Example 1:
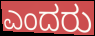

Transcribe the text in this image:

ಎಂದರು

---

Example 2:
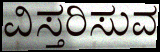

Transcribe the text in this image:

ವಿಸ್ತರಿಸುವ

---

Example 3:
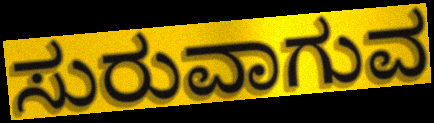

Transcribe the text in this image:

ಸುರುವಾಗುವ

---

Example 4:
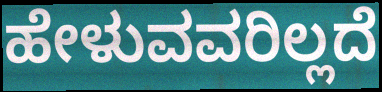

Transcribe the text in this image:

ಹೇಳುವವರಿಲ್ಲದೆ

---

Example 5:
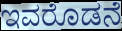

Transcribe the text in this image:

ಇವರೊಡನೆ